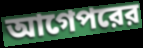
আগেপরের